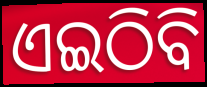
ଏଇଠିବି